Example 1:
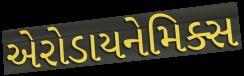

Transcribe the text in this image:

એરોડાયનેમિક્સ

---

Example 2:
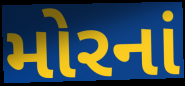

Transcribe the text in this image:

મોરનાં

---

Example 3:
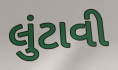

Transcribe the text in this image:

લુંટાવી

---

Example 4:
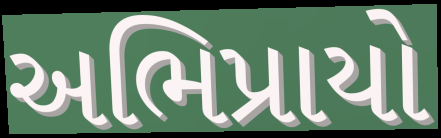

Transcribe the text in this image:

અભિપ્રાયો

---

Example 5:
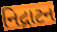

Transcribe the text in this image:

નિદ્રાટન